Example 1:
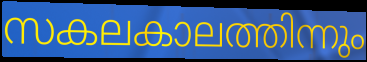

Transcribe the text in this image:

സകലകാലത്തിന്നും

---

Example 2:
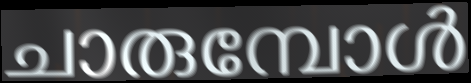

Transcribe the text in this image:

ചാരുമ്പോൾ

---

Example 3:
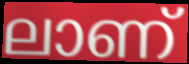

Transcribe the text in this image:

ലാണ്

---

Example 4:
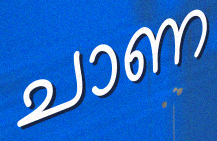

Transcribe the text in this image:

ചാണ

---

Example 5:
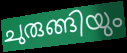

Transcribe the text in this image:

ചുരുങ്ങിയും